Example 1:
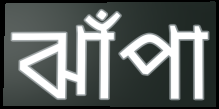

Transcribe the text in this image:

ঝাঁপা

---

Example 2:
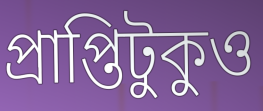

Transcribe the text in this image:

প্রাপ্তিটুকুও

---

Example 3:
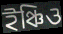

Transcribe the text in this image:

ইঞ্চিও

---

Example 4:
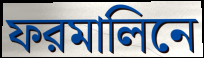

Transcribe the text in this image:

ফরমালিনে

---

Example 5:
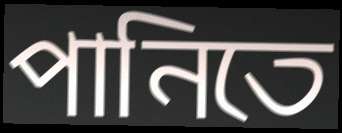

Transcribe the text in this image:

পানিতে